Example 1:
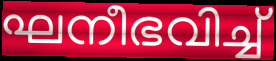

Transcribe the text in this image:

ഘനീഭവിച്ച്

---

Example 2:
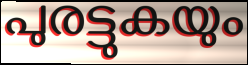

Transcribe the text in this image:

പുരട്ടുകയും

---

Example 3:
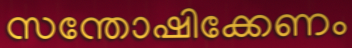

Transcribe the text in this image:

സന്തോഷിക്കേണം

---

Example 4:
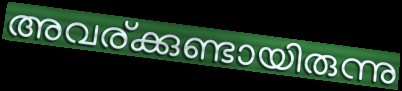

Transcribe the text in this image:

അവര്ക്കുണ്ടായിരുന്നു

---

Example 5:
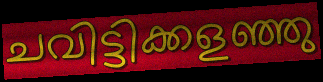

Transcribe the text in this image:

ചവിട്ടിക്കളഞ്ഞു